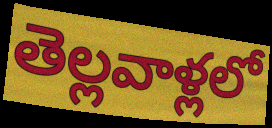
తెల్లవాళ్లలో